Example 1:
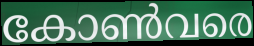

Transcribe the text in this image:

കോൺവരെ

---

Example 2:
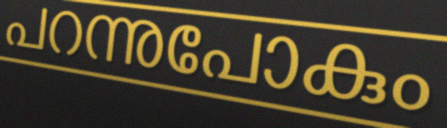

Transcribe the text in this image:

പറന്നുപോകും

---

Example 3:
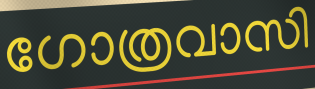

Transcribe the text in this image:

ഗോത്രവാസി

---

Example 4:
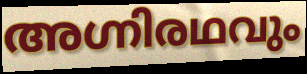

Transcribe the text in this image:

അഗ്നിരഥവും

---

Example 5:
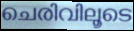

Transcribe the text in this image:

ചെരിവിലൂടെ